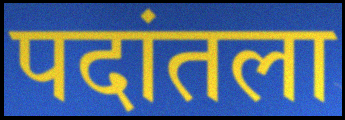
पदांतला